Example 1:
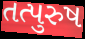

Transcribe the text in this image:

તત્પુરુષ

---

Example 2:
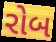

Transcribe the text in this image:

રોબ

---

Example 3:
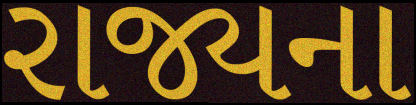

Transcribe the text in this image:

રાજ્યના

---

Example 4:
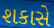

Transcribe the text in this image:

શકાસે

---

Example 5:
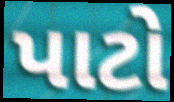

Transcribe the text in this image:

પાટો